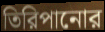
তিরিপানোর